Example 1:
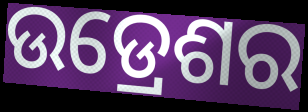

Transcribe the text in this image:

ଉଡ୍ରେଶର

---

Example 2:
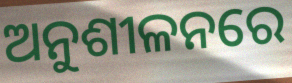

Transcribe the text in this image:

ଅନୁଶୀଳନରେ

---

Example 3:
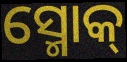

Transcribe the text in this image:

ସ୍ମୋକ୍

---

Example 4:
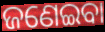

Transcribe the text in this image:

ଜଣେଇବା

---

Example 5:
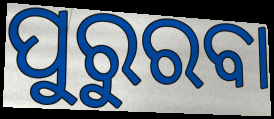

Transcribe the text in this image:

ପୁରୁରବା